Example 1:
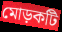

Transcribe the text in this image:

মোড়কটি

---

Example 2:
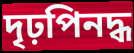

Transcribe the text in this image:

দৃঢ়পিনদ্ধ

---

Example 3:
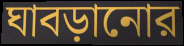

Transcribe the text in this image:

ঘাবড়ানোর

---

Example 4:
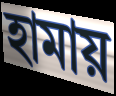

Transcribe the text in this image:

হামায়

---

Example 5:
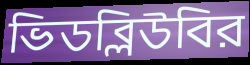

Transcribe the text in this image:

ভিডব্লিউবির